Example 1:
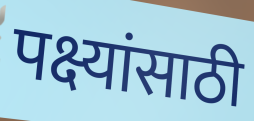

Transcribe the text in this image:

पक्ष्यांसाठी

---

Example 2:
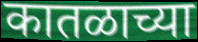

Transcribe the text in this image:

कातळाच्या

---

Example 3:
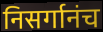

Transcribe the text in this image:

निसर्गानंच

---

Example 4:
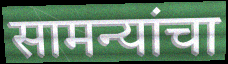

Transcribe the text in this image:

सामन्यांचा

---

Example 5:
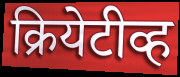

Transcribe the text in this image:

क्रियेटीव्ह